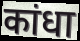
कांधा